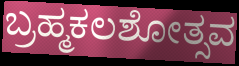
ಬ್ರಹ್ಮಕಲಶೋತ್ಸವ